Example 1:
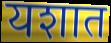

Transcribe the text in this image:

यशात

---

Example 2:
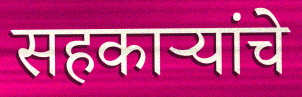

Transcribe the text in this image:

सहकाऱ्यांचे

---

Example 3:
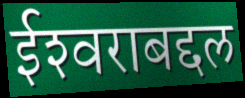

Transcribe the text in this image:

ईश्वराबद्दल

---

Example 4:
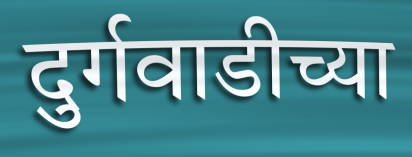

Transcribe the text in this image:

दुर्गवाडीच्या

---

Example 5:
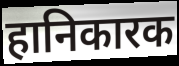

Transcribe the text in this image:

हानिकारक